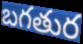
బగతుర